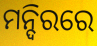
ମନ୍ଦିରରେ